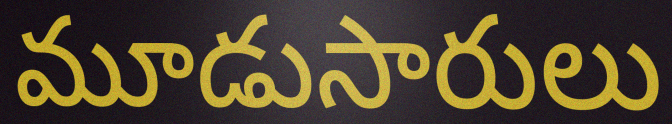
మూడుసారులు